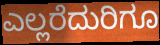
ಎಲ್ಲರೆದುರಿಗೂ